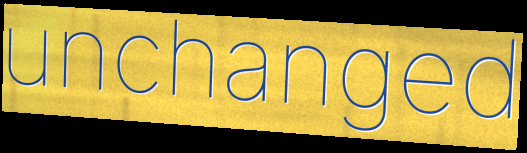
unchanged